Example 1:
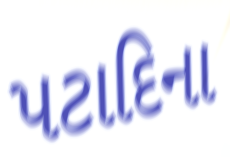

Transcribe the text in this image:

પટાદિના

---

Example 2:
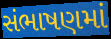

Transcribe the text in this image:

સંભાષણમાં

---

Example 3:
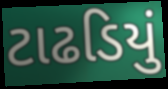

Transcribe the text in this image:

ટાઢડિયું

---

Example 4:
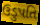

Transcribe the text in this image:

ઉડુપતિ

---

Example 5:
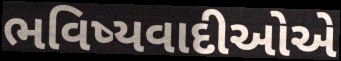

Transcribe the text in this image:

ભવિષ્યવાદીઓએ